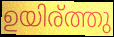
ഉയിര്ത്തു